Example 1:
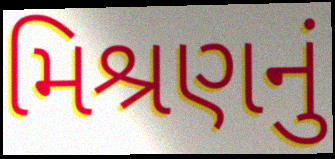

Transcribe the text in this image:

મિશ્રણનું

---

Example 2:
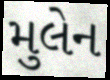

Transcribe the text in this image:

મુલેન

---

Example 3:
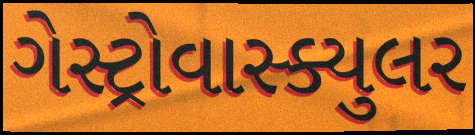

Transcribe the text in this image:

ગેસ્ટ્રોવાસ્ક્યુલર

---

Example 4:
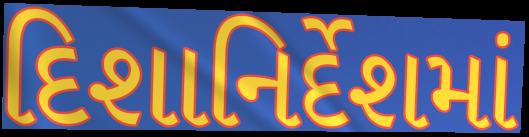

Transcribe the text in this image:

દિશાનિર્દેશમાં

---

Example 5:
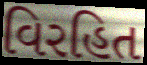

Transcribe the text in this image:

વિરહિત